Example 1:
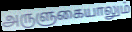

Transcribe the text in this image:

அருளுகையாலும்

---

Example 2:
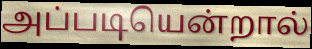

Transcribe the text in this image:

அப்படியென்றால்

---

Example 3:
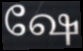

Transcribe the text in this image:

ஷே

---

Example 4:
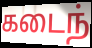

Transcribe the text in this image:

கடைந்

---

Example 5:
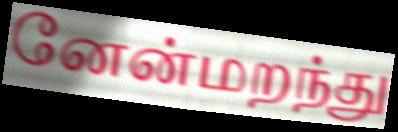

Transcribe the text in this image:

னேன்மறந்து